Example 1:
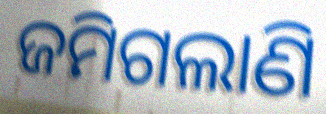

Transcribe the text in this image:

ଜମିଗଲାଣି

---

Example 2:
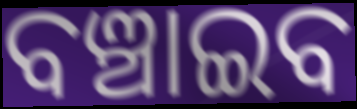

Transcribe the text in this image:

ବଞ୍ଚାଇବ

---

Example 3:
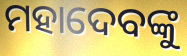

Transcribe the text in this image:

ମହାଦେବଙ୍କୁ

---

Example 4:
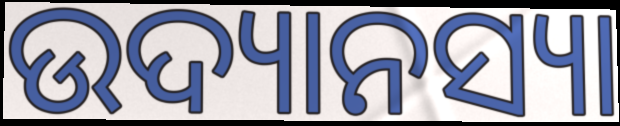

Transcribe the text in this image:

ଉଦ୍ୟାନସ୍ୟା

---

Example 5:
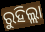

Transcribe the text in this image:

ରୁହିଲ୍ଲା